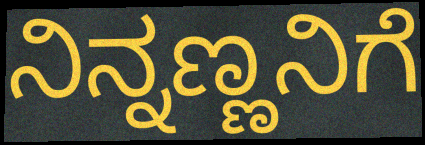
ನಿನ್ನಣ್ಣನಿಗೆ